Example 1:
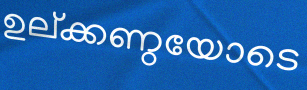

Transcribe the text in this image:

ഉല്ക്കണ്ഠയോടെ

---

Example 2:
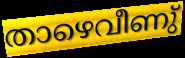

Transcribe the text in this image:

താഴെവീണു്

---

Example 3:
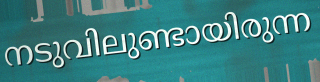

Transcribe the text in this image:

നടുവിലുണ്ടായിരുന്ന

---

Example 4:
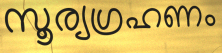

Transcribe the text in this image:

സൂര്യഗ്രഹണം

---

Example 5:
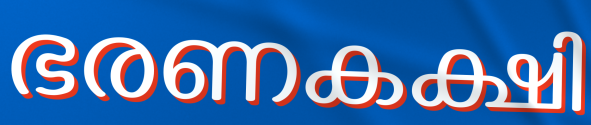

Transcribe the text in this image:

ഭരണകക്ഷി